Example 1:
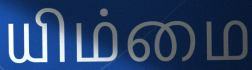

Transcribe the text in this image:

யிம்மை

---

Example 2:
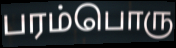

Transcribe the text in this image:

பரம்பொரு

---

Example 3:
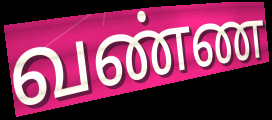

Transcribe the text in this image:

வண்ண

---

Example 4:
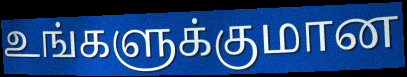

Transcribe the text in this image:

உங்களுக்குமான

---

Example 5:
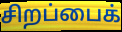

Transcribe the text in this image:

சிறப்பைக்